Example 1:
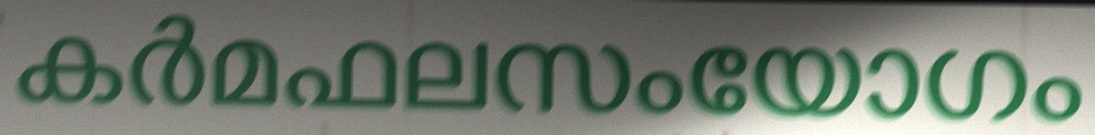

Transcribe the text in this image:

കർമഫലസംയോഗം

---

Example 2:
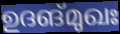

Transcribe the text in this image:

ഉദങ്മുഖഃ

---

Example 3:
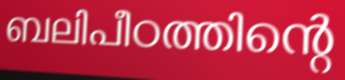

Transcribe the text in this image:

ബലിപീഠത്തിന്റെ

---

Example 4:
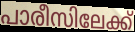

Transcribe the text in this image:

പാരീസിലേക്ക്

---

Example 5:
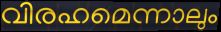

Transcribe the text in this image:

വിരഹമെന്നാലും